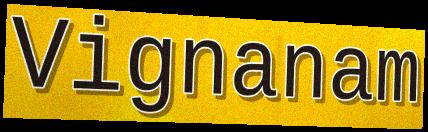
Vignanam